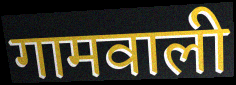
गामवाली